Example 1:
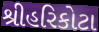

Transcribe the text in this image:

શ્રીહરિકોટા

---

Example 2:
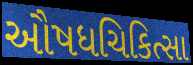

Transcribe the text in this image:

ઔષધચિકિત્સા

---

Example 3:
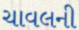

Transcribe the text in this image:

ચાવલની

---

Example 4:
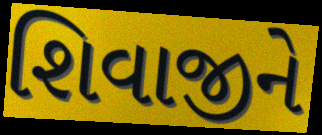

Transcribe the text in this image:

શિવાજીને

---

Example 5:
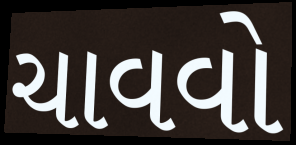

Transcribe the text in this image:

ચાવવો